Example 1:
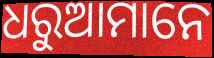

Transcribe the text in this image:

ଧରୁଆମାନେ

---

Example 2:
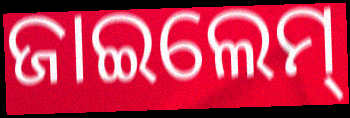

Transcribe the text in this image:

ଜାଇଲେମ୍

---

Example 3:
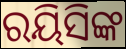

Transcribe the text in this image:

ରୟିସିଙ୍କ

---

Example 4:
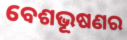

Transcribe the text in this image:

ବେଶଭୂଷଣର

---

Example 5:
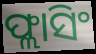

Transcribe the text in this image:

ଫ୍ଲାସିଂ